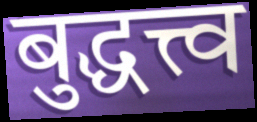
बुद्धत्त्व